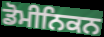
ਡੋਮੀਨਿਕਨ